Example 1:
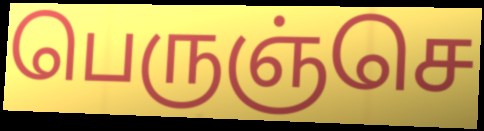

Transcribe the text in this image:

பெருஞ்செ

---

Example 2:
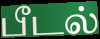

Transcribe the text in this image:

பீடல்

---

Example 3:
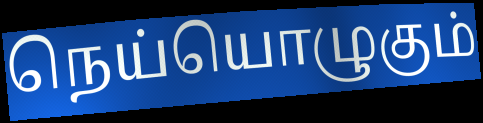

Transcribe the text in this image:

நெய்யொழுகும்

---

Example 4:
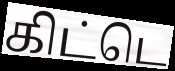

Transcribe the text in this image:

கிட்டெ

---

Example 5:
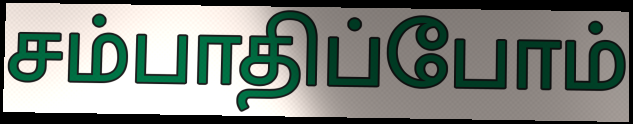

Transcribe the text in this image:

சம்பாதிப்போம்